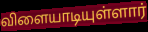
விளையாடியுள்ளார்